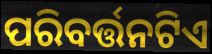
ପରିବର୍ତ୍ତନଟିଏ